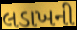
લડાખની